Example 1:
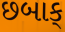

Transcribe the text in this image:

છબાક્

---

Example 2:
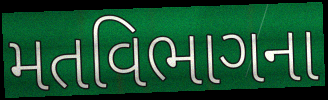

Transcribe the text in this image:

મતવિભાગના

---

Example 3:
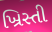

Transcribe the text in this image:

ખ્રિસ્તી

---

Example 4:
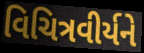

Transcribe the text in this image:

વિચિત્રવીર્યને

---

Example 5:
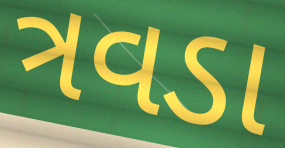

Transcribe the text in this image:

ત્રવડા